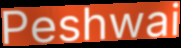
Peshwai